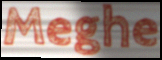
Meghe